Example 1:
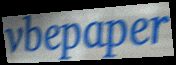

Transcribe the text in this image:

vbepaper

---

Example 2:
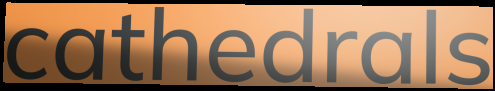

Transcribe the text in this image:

cathedrals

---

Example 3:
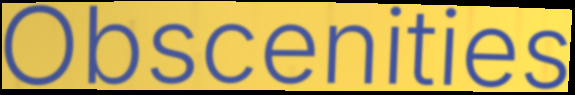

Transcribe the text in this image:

Obscenities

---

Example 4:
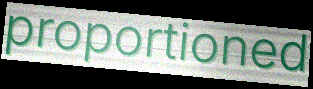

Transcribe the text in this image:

proportioned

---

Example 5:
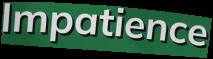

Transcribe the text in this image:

Impatience